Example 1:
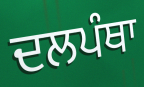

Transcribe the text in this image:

ਦਲਪੰਥਾ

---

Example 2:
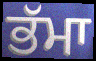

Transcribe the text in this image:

ਭੱਮਾ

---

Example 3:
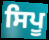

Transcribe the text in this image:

ਸਿਪੂ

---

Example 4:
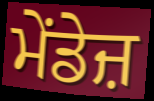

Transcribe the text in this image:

ਮੇਂਡੇਜ਼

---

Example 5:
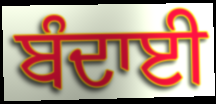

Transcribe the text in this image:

ਬੰਦਾਈ